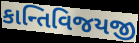
કાન્તિવિજયજી